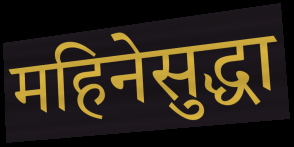
महिनेसुद्धा